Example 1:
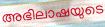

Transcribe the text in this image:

അഭിലാഷയുടെ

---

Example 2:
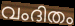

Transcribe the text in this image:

വംദിതം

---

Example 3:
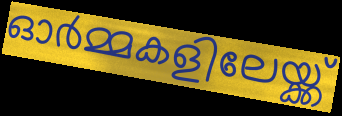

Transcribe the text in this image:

ഓർമ്മകളിലേയ്ക്ക്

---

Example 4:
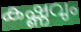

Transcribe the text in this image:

കഷ്ണവും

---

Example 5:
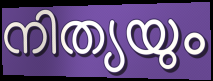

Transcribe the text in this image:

നിത്യയും